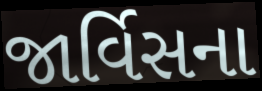
જાર્વિસના